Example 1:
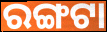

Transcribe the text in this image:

ରଙ୍ଗଟା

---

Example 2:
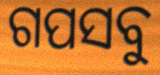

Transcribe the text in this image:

ଗପସବୁ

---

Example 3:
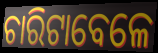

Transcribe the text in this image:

ଚାରିଟାବେଳେ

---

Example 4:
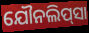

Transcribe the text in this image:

ଯୌନଲିପ୍‌ସା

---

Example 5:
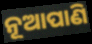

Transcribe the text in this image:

ନୂଆପାଣି